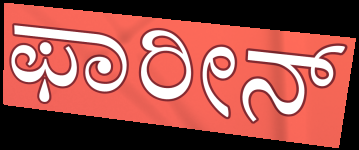
ಫಾರೀನ್